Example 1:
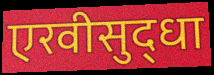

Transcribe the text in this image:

एरवीसुद्धा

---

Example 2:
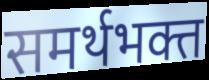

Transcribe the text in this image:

समर्थभक्त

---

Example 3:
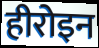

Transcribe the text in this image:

हीरोइन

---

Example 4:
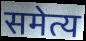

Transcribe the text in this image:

समेत्य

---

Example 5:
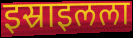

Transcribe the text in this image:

इस्राइलला